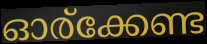
ഓര്ക്കേണ്ട